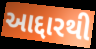
આદ્દારથી